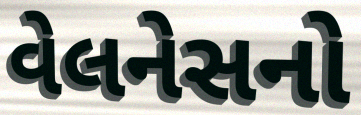
વેલનેસનો